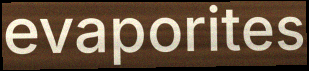
evaporites